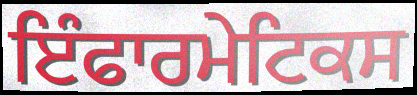
ਇੰਫਾਰਮੇਟਿਕਸ